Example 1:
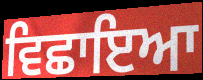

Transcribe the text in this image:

ਵਿਛਾਇਆ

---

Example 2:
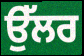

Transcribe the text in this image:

ਉੱਲਰ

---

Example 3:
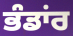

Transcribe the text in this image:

ਭੰਡਾਂਰ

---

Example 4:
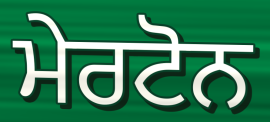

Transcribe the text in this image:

ਮੇਰਟੋਨ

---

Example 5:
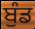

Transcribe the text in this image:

ਬੁੰਡ